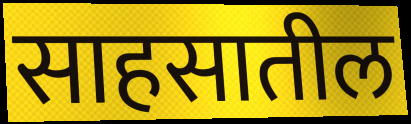
साहसातील